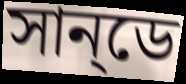
সান্‌ডে